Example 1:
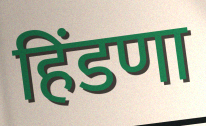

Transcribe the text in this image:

हिंडणा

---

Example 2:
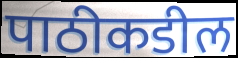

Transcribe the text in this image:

पाठीकडील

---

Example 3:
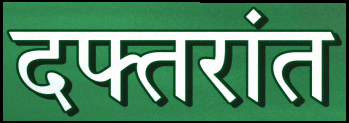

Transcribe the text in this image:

दफ्तरांत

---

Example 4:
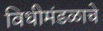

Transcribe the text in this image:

विधीमंडळाचे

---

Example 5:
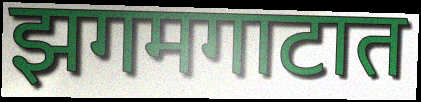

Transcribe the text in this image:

झगमगाटात